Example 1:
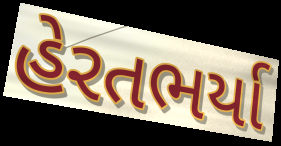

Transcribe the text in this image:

હેરતભર્યા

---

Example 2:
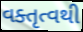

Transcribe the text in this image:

વક્તૃત્વથી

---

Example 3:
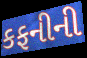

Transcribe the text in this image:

કફનીની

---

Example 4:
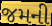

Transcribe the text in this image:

જમની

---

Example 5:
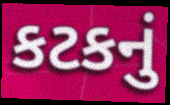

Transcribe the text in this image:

કટકનું